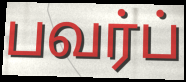
பவர்ப்